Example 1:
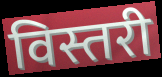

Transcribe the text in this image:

विस्तरी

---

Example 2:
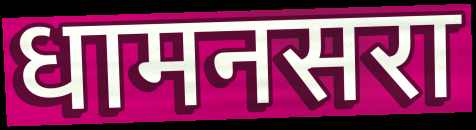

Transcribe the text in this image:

धामनसरा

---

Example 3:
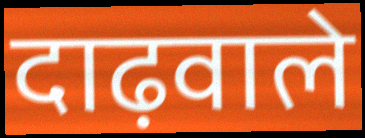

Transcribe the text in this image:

दाढ़वाले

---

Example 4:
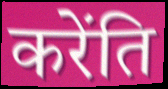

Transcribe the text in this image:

करेंति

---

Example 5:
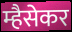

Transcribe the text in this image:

म्हैसेकर